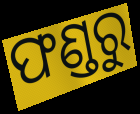
ଫଣ୍ଡରୁ